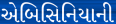
એબિસિનિયાની